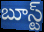
బూస్ట్